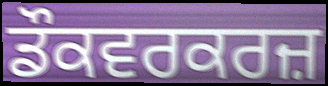
ਡੌਕਵਰਕਰਜ਼